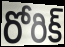
రోరిక్